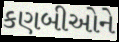
કણબીઓને